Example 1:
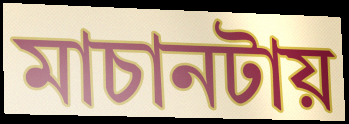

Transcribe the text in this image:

মাচানটায়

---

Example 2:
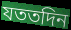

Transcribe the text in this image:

যততদিন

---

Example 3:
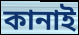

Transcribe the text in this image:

কানাই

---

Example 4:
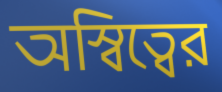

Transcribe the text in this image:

অস্বিত্বের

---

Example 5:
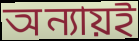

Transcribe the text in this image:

অন্যায়ই